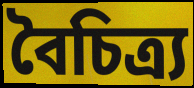
বৈচিত্র্য